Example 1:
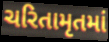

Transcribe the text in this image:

ચરિતામૃતમાં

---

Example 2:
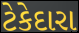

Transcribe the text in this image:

ટેકેદારા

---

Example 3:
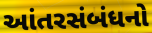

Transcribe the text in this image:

આંતરસંબંધનો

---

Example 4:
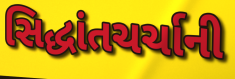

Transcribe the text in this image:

સિદ્ધાંતચર્ચાની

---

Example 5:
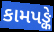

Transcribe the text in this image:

કામપઙ્કે